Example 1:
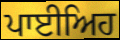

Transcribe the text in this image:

ਪਾਈਅਿਹ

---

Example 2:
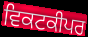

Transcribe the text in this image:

ਵਿਕਟਕੀਪਰ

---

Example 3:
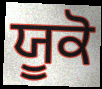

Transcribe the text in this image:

ਯੂਕੋ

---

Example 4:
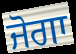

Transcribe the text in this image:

ਜੋਗਾ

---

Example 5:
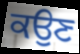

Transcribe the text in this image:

ਕਉਣ